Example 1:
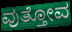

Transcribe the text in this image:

ವುತ್ತೋವ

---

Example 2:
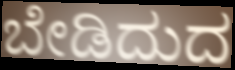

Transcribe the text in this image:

ಬೇಡಿದುದ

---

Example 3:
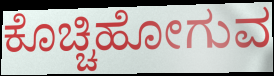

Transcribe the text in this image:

ಕೊಚ್ಚಿಹೋಗುವ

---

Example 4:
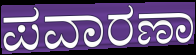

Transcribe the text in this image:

ಪವಾರಣಾ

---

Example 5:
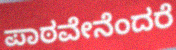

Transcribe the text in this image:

ಪಾಠವೇನೆಂದರೆ